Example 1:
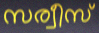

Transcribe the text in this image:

സര്വീസ്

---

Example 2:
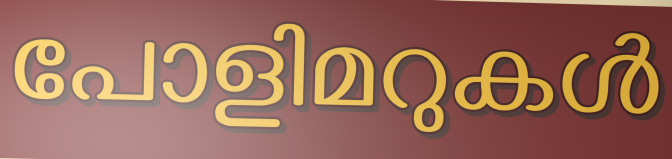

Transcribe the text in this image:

പോളിമറുകൾ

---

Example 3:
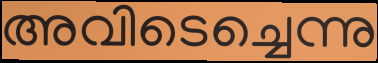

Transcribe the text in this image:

അവിടെച്ചെന്നു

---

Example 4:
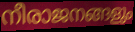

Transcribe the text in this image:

നീരാജനങ്ങളും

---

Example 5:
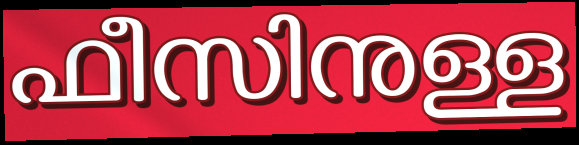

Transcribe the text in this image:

ഫീസിനുള്ള